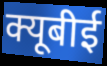
क्यूबीई